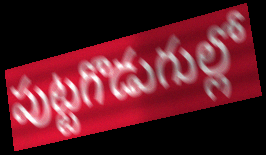
పుట్టగొడుగుల్లో